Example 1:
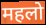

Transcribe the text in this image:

महलो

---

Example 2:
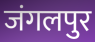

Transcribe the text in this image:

जंगलपुर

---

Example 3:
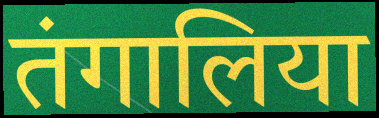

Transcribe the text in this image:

तंगालिया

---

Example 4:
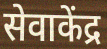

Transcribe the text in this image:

सेवाकेंद्र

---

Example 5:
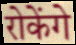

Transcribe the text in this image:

रोकेंगे